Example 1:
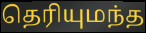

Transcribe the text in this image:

தெரியுமந்த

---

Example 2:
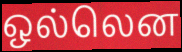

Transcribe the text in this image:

ஒல்லென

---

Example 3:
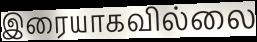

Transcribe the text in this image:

இரையாகவில்லை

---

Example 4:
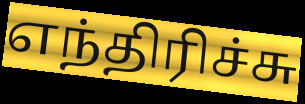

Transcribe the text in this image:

எந்திரிச்சு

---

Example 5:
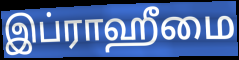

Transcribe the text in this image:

இப்ராஹீமை